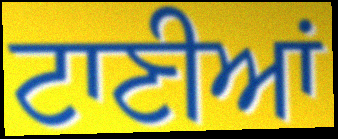
ਟਾਣੀਆਂ